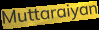
Muttaraiyan